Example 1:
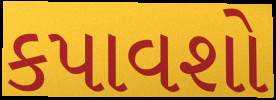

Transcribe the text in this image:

કપાવશો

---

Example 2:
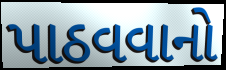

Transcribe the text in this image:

પાઠવવાનો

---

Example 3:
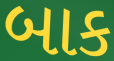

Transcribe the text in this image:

બાક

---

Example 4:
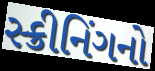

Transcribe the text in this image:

સ્ક્રીનિંગનો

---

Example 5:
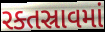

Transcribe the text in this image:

રક્તસ્રાવમાં